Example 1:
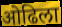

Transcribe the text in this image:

ओढिला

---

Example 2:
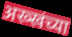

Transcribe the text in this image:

अख्खंच्या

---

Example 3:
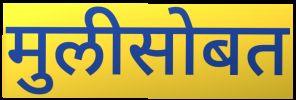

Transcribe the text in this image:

मुलीसोबत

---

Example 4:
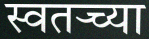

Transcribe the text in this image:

स्वतर्‍च्या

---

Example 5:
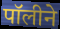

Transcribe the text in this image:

पॉलीने